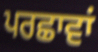
ਪਰਛਾਵਾਂ